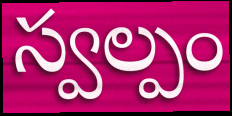
స్వల్పం